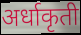
अर्धाकृती